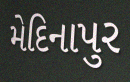
મેદિનાપુર